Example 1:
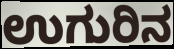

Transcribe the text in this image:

ಉಗುರಿನ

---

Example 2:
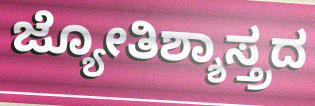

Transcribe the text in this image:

ಜ್ಯೋತಿಶ್ಶಾಸ್ತ್ರದ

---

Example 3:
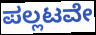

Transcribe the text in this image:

ಪಲ್ಲಟವೇ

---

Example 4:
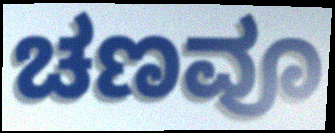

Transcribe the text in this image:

ಚಣವೂ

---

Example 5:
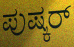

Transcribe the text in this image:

ಪುಷ್ಕರ್